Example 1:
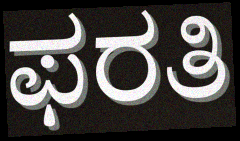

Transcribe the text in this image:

ಫರತಿ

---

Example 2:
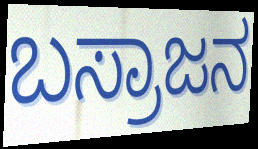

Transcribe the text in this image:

ಬಸ್ರಾಜನ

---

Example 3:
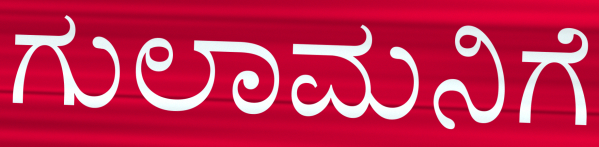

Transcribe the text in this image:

ಗುಲಾಮನಿಗೆ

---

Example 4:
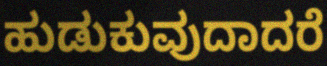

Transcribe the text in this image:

ಹುಡುಕುವುದಾದರೆ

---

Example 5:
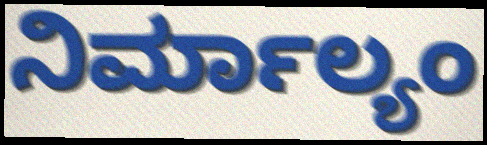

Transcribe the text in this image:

ನಿರ್ಮಾಲ್ಯಂ